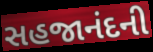
સહજાનંદની